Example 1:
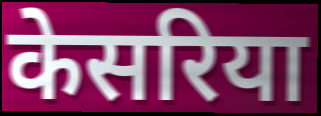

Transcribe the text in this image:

केसरिया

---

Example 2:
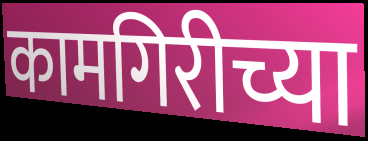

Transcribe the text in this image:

कामगिरीच्या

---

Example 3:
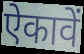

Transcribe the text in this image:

ऐकावें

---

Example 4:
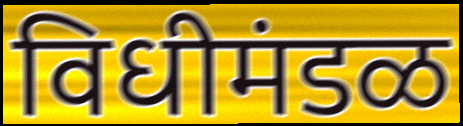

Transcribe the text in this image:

विधीमंडळ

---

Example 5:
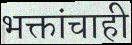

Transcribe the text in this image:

भक्तांचाही